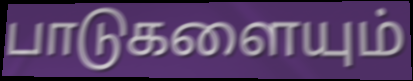
பாடுகளையும்